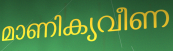
മാണിക്യവീണ